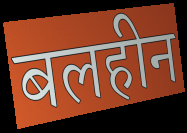
बलहीन